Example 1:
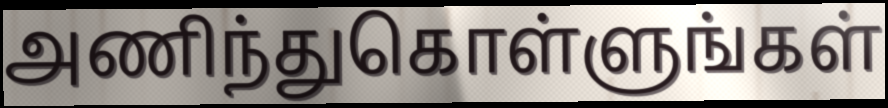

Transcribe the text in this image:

அணிந்துகொள்ளுங்கள்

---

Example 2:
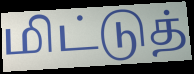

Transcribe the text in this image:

மிட்டுத்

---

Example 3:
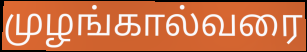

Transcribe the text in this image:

முழங்கால்வரை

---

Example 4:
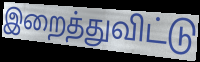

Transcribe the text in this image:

இறைத்துவிட்டு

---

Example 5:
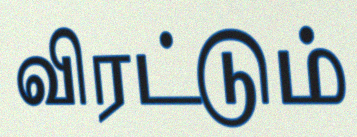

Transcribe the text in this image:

விரட்டும்